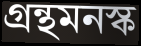
গ্রন্থমনস্ক